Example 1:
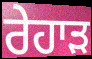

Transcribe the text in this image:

ਰੇਹਾੜ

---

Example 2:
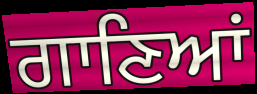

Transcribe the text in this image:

ਗਾਣਿਆਂ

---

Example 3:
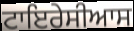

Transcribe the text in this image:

ਟਾਇਰੇਸੀਆਸ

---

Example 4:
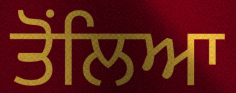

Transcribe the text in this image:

ਤੋਂਲਿਆ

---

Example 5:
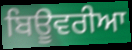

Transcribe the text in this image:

ਬਿਊਵਰੀਆ